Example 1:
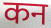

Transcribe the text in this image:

कन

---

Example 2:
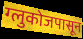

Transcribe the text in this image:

ग्लुकोजपासून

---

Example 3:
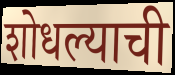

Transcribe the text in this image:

शोधल्याची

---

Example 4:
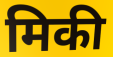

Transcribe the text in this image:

मिकी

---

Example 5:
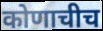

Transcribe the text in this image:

कोणाचीच